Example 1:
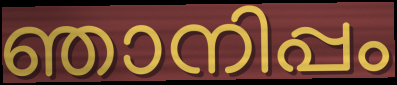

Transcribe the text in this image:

ഞാനിപ്പം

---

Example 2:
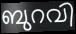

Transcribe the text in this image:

ബുറവി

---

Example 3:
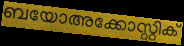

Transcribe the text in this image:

ബയോഅക്കോസ്റ്റിക്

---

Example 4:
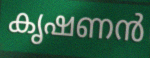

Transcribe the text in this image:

കൃഷണൻ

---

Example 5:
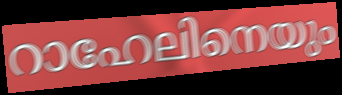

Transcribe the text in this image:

റാഹേലിനെയും